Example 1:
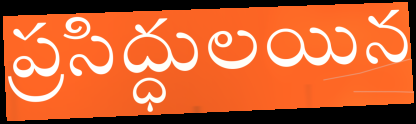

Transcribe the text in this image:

ప్రసిద్ధులయిన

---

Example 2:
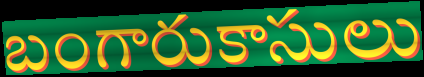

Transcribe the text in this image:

బంగారుకాసులు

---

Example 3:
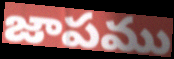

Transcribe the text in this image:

జాపము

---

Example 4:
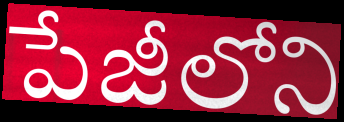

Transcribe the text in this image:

పేజీలోని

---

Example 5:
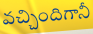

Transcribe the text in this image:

వచ్చిందిగానీ